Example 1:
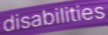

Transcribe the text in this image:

disabilities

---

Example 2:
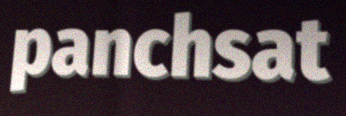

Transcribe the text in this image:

panchsat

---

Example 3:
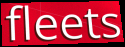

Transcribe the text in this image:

fleets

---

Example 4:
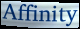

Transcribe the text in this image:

Affinity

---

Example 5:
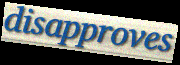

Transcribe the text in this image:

disapproves